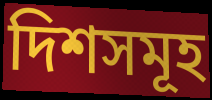
দিশসমূহ